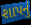
શાપનું